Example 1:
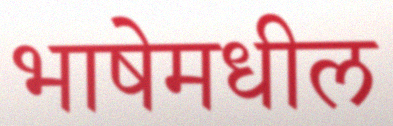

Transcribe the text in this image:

भाषेमधील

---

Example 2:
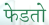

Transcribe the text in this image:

फेडतो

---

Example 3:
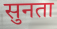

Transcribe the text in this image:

सुनता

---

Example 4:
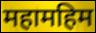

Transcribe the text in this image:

महामहिम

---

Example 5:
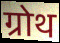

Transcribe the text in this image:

ग्रोथ